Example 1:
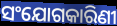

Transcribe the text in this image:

ସଂଯୋଗକାରିଣୀ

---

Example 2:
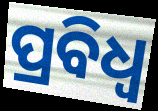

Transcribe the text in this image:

ପ୍ରବିଧ୍ଵ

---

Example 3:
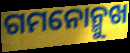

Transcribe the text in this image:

ଗମନୋନ୍ମୁଖ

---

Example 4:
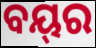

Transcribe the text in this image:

ବୟ୍‌ର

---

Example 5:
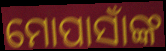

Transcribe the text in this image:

ମୋପାସାଁଙ୍କ